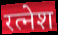
रत्नेश